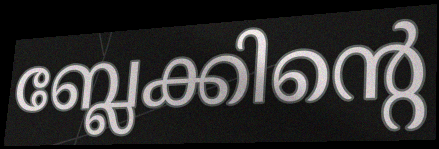
ബ്ലേക്കിന്റെ